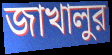
জাখালুর